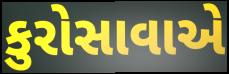
કુરોસાવાએ